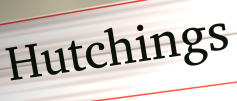
Hutchings